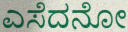
ಎಸೆದನೋ